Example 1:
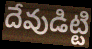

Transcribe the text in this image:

దేవుడిట్టి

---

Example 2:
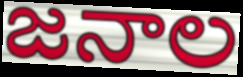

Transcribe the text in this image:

జనాల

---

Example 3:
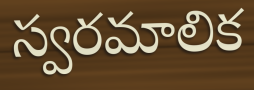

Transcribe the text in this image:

స్వరమాలిక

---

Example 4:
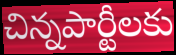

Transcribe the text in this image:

చిన్నపార్టీలకు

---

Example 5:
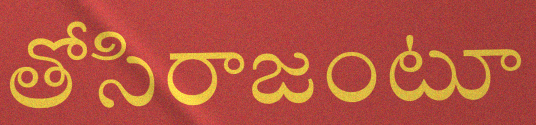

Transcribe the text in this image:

తోసిరాజంటూ